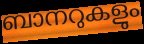
ബാനറുകളും